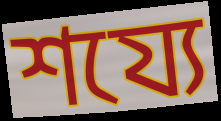
শয্যে